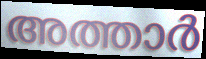
അത്താർ